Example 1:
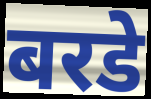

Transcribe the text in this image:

बरडे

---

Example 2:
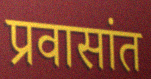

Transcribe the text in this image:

प्रवासांत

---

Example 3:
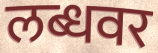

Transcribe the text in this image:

लब्धवर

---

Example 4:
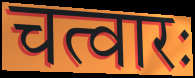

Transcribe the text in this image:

चत्वारः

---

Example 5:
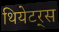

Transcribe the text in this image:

थियेटर्स